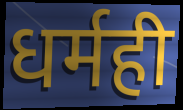
धर्मही